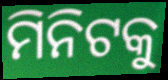
ମିନିଟକୁ